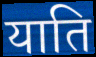
याति